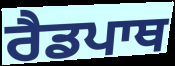
ਰੈਡਪਾਥ